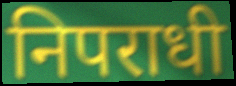
निपराधी